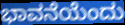
ಭಾವನೆಯೆಂದು